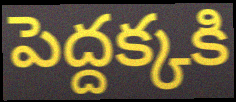
పెద్దక్కకి